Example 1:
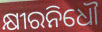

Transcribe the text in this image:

କ୍ଷୀରନିଧୌ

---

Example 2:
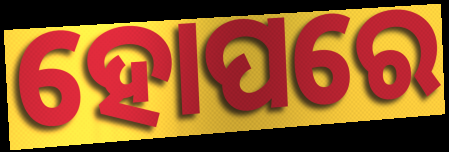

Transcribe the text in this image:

ହୋପରେ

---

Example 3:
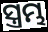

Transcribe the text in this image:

ସ୍ତ୍ରମ୍ଭ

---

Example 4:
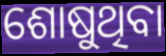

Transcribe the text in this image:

ଶୋଷୁଥିବା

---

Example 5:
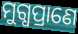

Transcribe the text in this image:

ମୁଗ୍ଧପ୍ରାଣେ